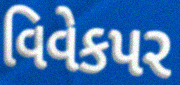
વિવેકપર